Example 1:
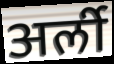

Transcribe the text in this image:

अर्ली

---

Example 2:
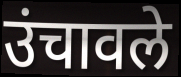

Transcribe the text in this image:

उंचावले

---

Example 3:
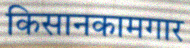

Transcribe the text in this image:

किसानकामगार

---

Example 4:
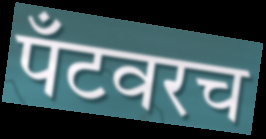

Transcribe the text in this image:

पँटवरच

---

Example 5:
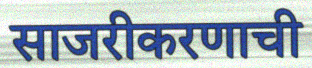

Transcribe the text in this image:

साजरीकरणाची